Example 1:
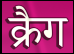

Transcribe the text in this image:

क्रैग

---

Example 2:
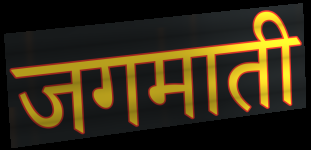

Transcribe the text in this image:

जगमाती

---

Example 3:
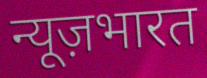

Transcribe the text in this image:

न्यूज़भारत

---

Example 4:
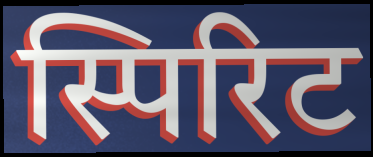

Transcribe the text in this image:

स्पिरिट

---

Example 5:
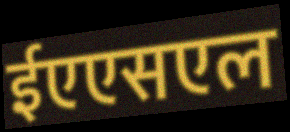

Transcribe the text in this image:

ईएएसएल